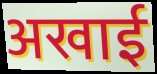
अखाई